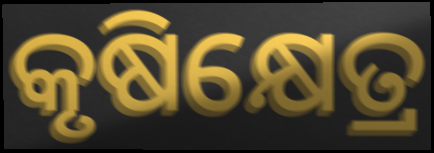
କୃଷିକ୍ଷେତ୍ର